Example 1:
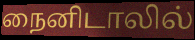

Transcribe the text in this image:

நைனிடாலில்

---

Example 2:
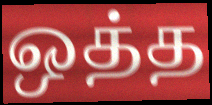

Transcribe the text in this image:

ஒத்த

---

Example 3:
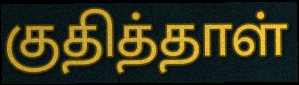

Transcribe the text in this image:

குதித்தாள்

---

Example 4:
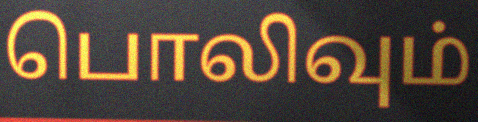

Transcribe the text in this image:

பொலிவும்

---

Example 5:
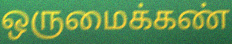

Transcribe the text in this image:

ஒருமைக்கண்